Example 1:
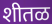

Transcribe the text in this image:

शीतळ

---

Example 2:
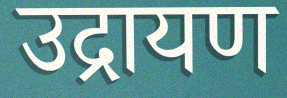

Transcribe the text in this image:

उद्रायण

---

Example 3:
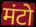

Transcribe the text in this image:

मंटो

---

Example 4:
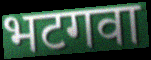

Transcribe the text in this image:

भटगवा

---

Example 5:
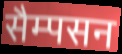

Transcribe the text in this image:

सैम्पसन